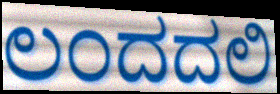
ಲಂದದಲಿ